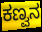
ಕಣ್ವನ